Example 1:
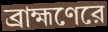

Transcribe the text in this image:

ব্রাহ্মণেরে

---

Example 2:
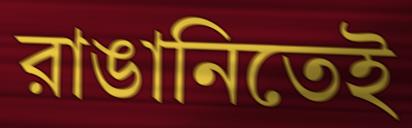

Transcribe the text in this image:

রাঙানিতেই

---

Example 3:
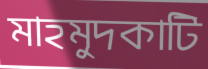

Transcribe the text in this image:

মাহমুদকাটি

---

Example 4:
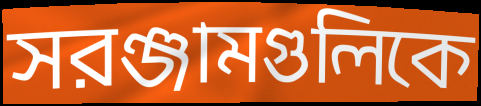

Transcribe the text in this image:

সরঞ্জামগুলিকে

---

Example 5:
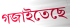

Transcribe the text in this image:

গজাইতেছে